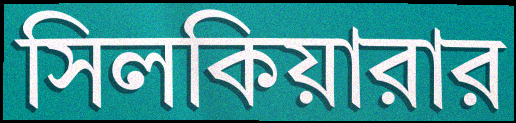
সিলকিয়ারার